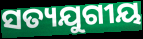
ସତ୍ୟଯୁଗୀୟ